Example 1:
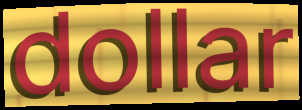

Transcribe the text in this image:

dollar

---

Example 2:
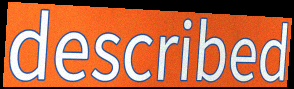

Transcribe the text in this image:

described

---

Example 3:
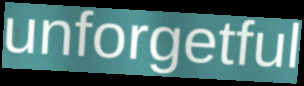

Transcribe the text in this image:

unforgetful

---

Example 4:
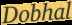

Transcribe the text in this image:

Dobhal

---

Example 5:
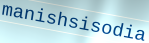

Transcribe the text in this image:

manishsisodia